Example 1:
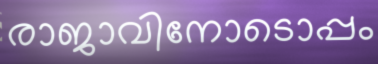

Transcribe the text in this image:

രാജാവിനോടൊപ്പം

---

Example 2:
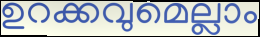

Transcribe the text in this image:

ഉറക്കവുമെല്ലാം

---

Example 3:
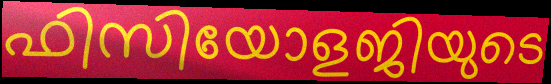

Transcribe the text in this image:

ഫിസിയോളജിയുടെ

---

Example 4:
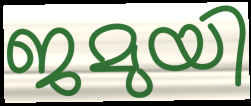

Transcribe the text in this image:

ജമുയി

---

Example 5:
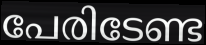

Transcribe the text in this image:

പേരിടേണ്ട